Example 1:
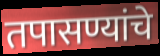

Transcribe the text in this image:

तपासण्यांचे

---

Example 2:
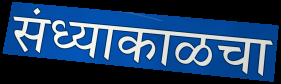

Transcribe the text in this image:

संध्याकाळचा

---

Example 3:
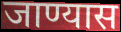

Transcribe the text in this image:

जाण्यास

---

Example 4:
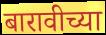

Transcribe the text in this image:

बारावीच्या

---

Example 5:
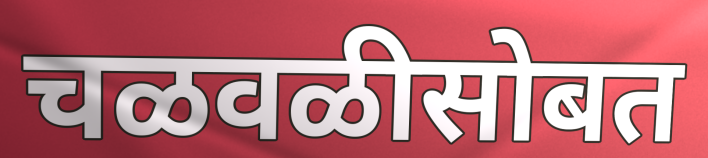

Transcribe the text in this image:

चळवळीसोबत